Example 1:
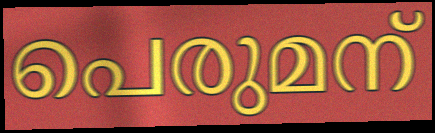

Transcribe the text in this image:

പെരുമന്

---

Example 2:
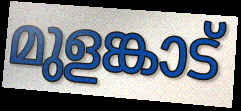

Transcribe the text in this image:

മുളങ്കാട്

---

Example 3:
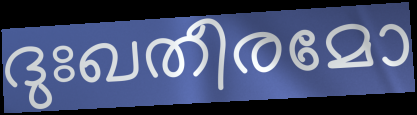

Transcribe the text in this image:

ദുഃഖതീരമോ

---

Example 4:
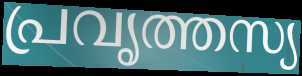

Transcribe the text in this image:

പ്രവൃത്തസ്യ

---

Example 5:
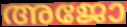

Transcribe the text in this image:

അജോ